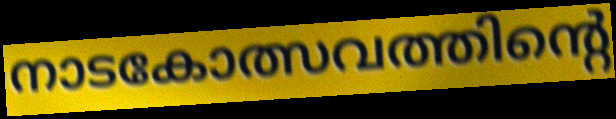
നാടകോത്സവത്തിന്റെ